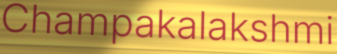
Champakalakshmi